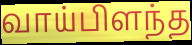
வாய்பிளந்த